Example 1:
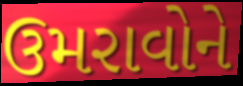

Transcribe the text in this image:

ઉમરાવોને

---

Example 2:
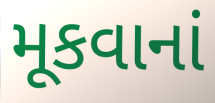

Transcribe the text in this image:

મૂકવાનાં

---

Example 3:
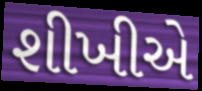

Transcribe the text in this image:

શીખીએ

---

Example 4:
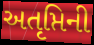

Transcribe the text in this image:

અતૃપ્તિની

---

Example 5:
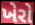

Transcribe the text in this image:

ખેરો